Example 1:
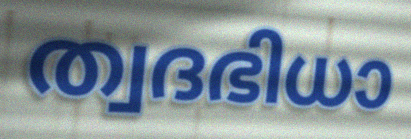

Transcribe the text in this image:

ത്വദഭിധാ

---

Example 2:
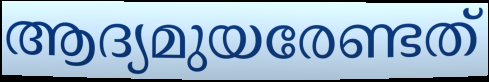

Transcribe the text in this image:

ആദ്യമുയരേണ്ടത്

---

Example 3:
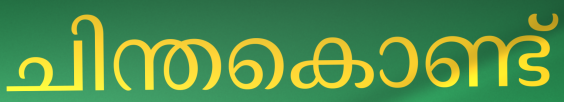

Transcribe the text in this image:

ചിന്തകൊണ്ട്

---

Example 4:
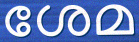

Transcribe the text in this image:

ശേമ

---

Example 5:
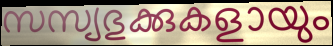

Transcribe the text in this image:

സസ്യഭുക്കുകളായും